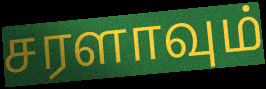
சரளாவும்